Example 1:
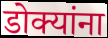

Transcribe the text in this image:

डोक्यांना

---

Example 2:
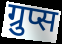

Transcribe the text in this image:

ग्रुप्स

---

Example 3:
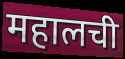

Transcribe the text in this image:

महालची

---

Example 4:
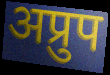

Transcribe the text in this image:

अप्रुप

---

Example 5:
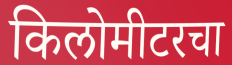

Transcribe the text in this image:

किलोमीटरचा